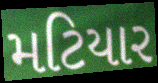
મટિયાર